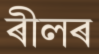
ৰীলৰ